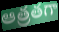
ఆత్రతగా